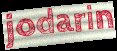
jodarin